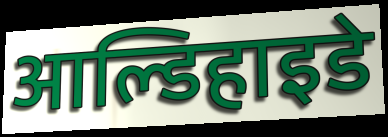
आल्डिहाइडे